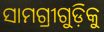
ସାମଗ୍ରୀଗୁଡ଼ିକୁ